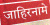
जाहिरनामे